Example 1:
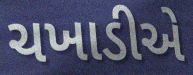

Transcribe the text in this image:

ચખાડીએ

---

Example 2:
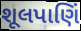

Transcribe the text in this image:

શૂલપાણિં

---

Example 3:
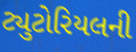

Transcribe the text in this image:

ટ્યુટોરિયલની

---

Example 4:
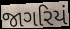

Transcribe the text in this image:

જાગરિયં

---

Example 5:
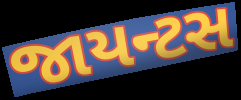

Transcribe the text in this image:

જાયન્ટસ